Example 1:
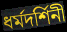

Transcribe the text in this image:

ধর্মদর্শিনী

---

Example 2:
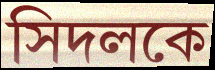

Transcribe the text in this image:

সিদলকে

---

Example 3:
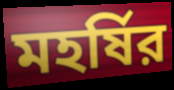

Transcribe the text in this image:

মহর্ষির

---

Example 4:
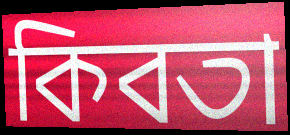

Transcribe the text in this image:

কিবতা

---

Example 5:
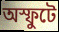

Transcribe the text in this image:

অস্ফুটে